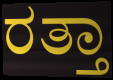
ರತ್ತಾ